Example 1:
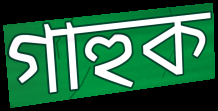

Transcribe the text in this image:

গাহুক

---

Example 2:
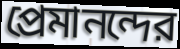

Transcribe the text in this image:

প্রেমানন্দের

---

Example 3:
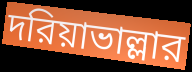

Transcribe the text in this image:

দরিয়াভাল্লার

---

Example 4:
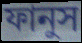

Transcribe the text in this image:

ফানুস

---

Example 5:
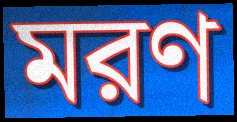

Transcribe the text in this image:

মরণ